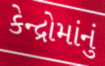
કેન્દ્રોમાંનું